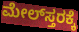
ಮೇಲ್‌ಸ್ತರಕ್ಕೆ